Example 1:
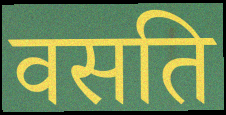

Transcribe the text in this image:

वसति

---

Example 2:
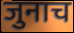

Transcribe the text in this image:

जुनाच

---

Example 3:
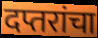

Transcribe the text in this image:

दप्तरांचा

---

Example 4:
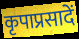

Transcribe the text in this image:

कृपाप्रसादें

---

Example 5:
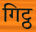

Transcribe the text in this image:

गिट्ठ